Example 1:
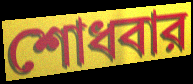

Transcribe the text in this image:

শোধবার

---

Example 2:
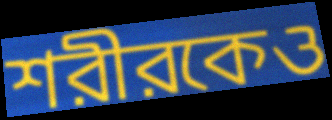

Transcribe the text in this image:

শরীরকেও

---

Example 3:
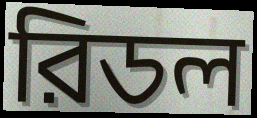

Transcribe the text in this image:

রিডল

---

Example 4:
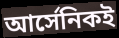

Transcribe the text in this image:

আর্সেনিকই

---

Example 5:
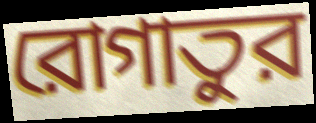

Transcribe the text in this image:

রোগাতুর